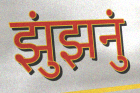
झुंझनुं